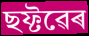
ছফ্টৱেৰ